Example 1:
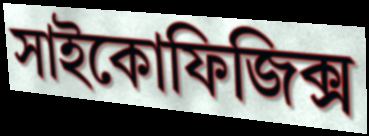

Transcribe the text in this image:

সাইকোফিজিক্স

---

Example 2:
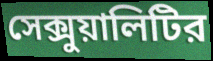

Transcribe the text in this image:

সেক্সুয়ালিটির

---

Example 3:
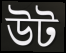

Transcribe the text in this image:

উট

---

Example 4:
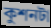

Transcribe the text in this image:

কুশনটা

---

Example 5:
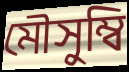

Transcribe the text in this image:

মৌসুম্বি